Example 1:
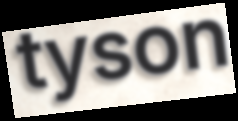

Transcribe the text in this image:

tyson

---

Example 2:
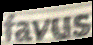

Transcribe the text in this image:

favus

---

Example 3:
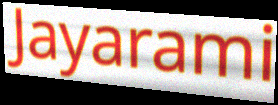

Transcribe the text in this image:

Jayarami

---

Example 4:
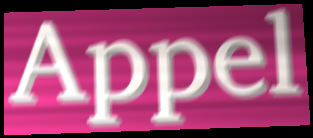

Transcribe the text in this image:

Appel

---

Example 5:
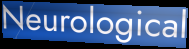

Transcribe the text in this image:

Neurological